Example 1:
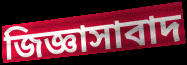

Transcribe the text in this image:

জিজ্ঞাসাবাদ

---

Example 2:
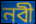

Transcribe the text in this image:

নবী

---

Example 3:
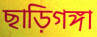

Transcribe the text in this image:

ছাড়িগঙ্গা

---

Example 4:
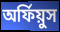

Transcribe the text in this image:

অর্ফিয়ুস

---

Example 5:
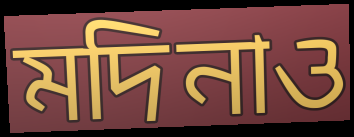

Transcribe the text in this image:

মদিনাও